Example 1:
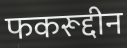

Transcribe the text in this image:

फकरूद्दीन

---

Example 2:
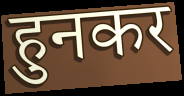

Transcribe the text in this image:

हुनकर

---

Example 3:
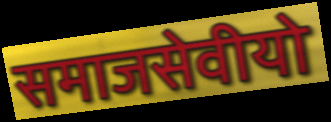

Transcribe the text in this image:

समाजसेवीयो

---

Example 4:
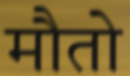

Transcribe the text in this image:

मौतो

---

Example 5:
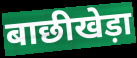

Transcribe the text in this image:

बाछीखेड़ा